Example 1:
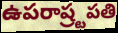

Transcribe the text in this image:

ఉపరాష్ర్టపతి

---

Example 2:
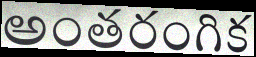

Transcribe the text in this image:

అంతరంగిక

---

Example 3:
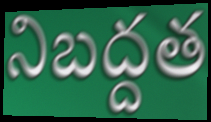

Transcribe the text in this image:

నిబద్దత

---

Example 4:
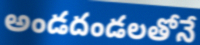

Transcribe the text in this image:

అండదండలతోనే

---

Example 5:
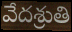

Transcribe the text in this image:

వేదశ్రుతి